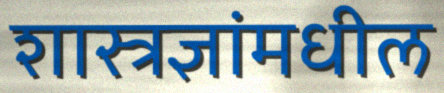
शास्त्रज्ञांमधील